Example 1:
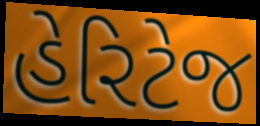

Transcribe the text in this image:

હેરિટેજ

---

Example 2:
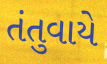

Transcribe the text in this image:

તંતુવાયે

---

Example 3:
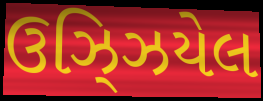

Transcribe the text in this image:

ઉઝ્ઝિયેલ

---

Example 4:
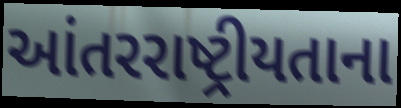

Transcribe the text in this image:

આંતરરાષ્ટ્રીયતાના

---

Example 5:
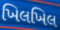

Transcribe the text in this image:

ખિલખિલ